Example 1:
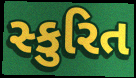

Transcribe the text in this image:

સ્કુરિત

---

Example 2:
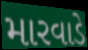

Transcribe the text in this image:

મારવાડે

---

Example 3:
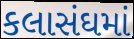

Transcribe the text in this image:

કલાસંઘમાં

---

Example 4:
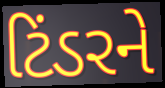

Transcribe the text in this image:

ટિંડરને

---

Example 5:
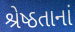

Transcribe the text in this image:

શ્રેષ્ઠતાનાં